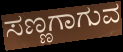
ಸಣ್ಣಗಾಗುವ